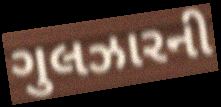
ગુલઝારની